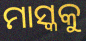
ମାସ୍କକୁ